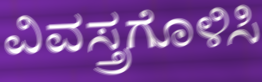
ವಿವಸ್ತ್ರಗೊಳಿಸಿ